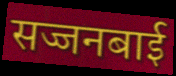
सज्जनबाई